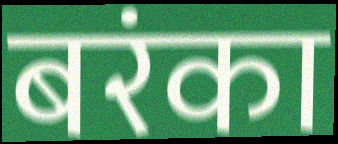
बरंका